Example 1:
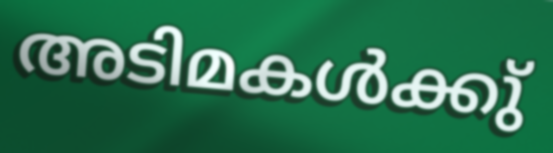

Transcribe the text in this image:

അടിമകൾക്കു്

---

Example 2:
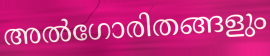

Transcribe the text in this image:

അൽഗോരിതങ്ങളും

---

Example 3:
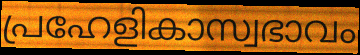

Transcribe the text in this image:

പ്രഹേളികാസ്വഭാവം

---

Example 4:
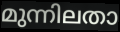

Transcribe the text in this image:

മുന്നിലതാ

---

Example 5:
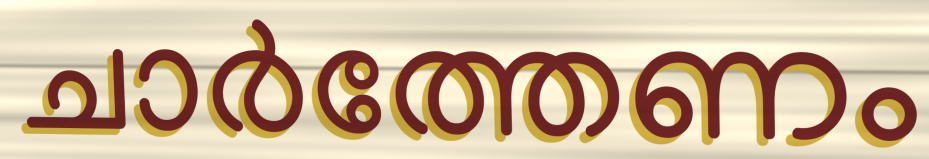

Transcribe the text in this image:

ചാർത്തേണം